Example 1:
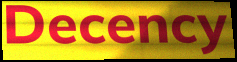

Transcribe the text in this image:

Decency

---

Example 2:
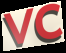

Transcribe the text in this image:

VC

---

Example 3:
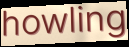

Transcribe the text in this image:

howling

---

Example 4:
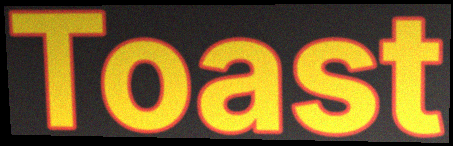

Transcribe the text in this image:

Toast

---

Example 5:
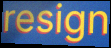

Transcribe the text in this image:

resign